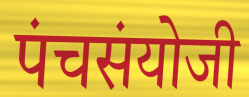
पंचसंयोजी